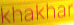
khakhar